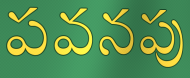
పవనపు